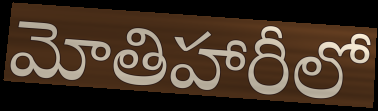
మోతిహారీలో